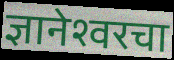
ज्ञानेश्वरचा